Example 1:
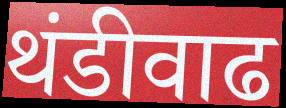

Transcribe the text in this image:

थंडीवाढ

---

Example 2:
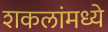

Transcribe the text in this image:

शकलांमध्ये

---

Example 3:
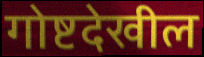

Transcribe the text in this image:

गोष्टदेखील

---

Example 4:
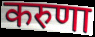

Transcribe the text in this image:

करुणा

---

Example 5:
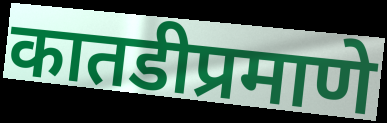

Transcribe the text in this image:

कातडीप्रमाणे